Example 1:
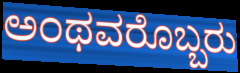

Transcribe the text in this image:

ಅಂಥವರೊಬ್ಬರು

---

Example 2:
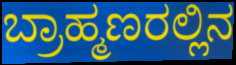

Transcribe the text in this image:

ಬ್ರಾಹ್ಮಣರಲ್ಲಿನ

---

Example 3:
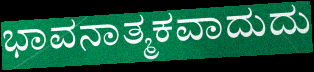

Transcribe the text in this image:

ಭಾವನಾತ್ಮಕವಾದುದು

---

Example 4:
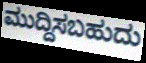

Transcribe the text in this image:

ಮುದ್ದಿಸಬಹುದು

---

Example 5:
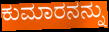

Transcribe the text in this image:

ಕುಮಾರನನ್ನು